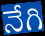
నేగి